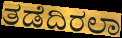
ತಡೆದಿರಲಾ